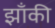
झाँकी